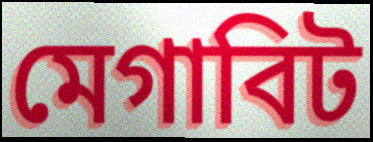
মেগাবিট